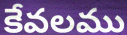
కేవలము